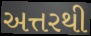
અત્તરથી